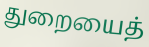
துறையைத்